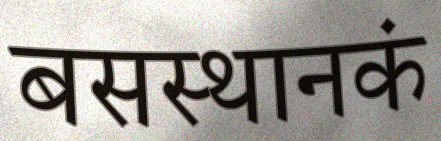
बसस्थानकं